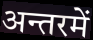
अन्तरमें